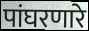
पांघरणारे